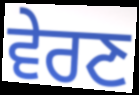
ਵੇਰਣ